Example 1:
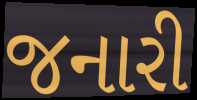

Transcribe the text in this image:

જનારી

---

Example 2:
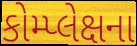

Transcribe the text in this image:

કોમ્પ્લેક્ષના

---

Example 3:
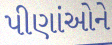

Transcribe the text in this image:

પીણાંઓને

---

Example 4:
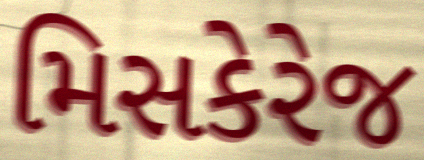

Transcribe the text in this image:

મિસકેરેજ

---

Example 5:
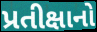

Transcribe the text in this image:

પ્રતીક્ષાનો